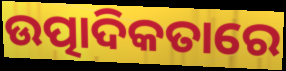
ଉତ୍ପାଦିକତାରେ